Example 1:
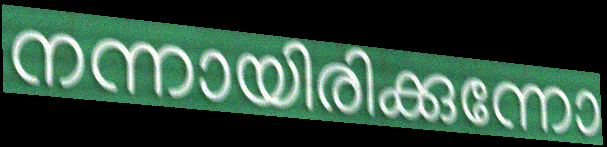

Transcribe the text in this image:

നന്നായിരിക്കുന്നോ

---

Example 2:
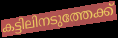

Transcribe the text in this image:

കട്ടിലിനടുത്തേക്ക്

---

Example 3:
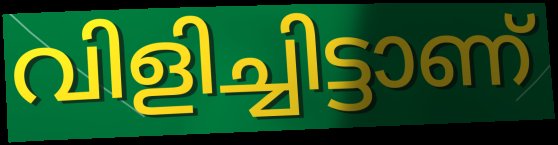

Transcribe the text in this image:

വിളിച്ചിട്ടാണ്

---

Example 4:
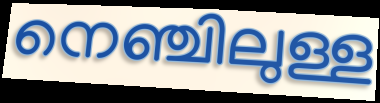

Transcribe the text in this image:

നെഞ്ചിലുള്ള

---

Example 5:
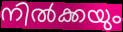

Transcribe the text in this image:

നിൽക്കയും